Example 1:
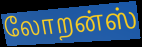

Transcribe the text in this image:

லோறன்ஸ்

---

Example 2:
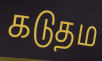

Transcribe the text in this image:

கடுதம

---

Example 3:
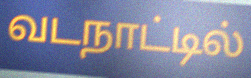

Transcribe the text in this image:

வடநாட்டில்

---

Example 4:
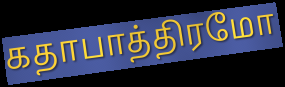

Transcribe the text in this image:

கதாபாத்திரமோ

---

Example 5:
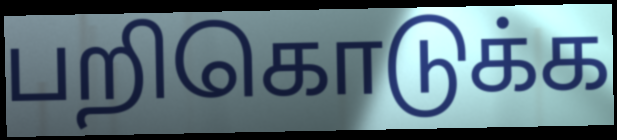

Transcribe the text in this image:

பறிகொடுக்க